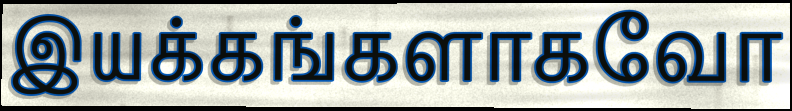
இயக்கங்களாகவோ